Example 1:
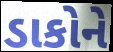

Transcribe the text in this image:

ડાકોને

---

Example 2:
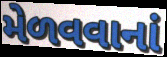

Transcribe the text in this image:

મેળવવાનાં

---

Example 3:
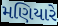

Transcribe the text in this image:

મણિયારે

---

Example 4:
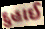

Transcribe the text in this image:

દુહાઈ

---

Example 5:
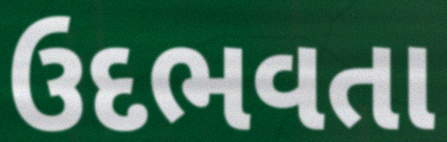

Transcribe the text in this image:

ઉદભવતા